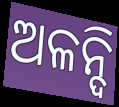
ଅଳନ୍ଦି